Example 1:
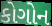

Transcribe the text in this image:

કોગોન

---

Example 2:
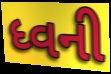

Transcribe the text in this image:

ધ્વની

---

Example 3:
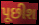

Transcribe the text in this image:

પૂછીશ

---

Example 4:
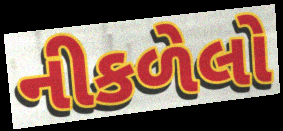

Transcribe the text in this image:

નીકળેલો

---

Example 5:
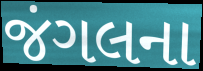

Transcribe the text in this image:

જંગલના